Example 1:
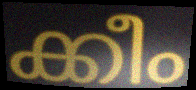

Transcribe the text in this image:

ക്കീം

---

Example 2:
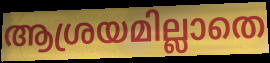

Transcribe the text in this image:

ആശ്രയമില്ലാതെ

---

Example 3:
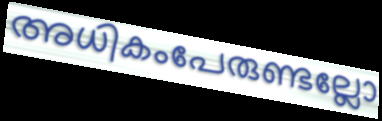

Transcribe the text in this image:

അധികംപേരുണ്ടല്ലോ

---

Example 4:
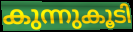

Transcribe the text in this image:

കുന്നുകൂടി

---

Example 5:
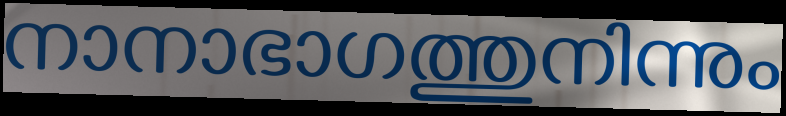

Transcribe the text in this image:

നാനാഭാഗത്തുനിന്നും